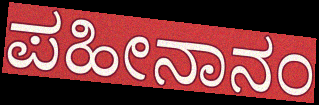
ಪಹೀನಾನಂ